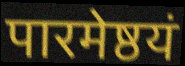
पारमेष्ठयं